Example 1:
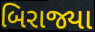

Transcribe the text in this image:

બિરાજ્યા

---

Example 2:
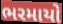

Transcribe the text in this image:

ભરમાયો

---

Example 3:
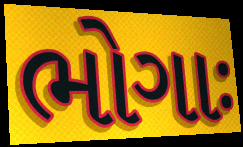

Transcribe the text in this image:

ભોગાઃ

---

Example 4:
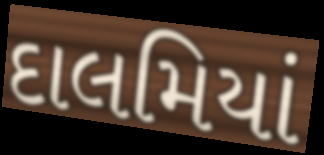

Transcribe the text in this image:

દાલમિયાં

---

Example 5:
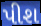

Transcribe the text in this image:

પીશ